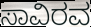
ಸಾವಿರವ